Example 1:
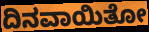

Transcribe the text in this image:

ದಿನವಾಯಿತೋ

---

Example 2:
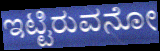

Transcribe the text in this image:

ಇಟ್ಟಿರುವನೋ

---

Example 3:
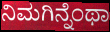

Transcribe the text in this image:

ನಿಮಗಿನ್ನೆಂಥಾ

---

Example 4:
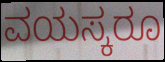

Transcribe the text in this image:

ವಯಸ್ಕರೂ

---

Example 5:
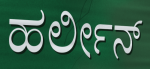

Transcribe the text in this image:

ಹರ್ಲೀನ್